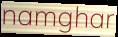
namghar